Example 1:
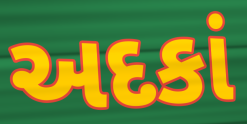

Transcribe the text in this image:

અદકાં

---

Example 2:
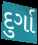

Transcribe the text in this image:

દુર્ગા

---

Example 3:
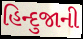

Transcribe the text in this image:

હિન્દુજાની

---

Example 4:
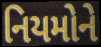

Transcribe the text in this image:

નિયમોને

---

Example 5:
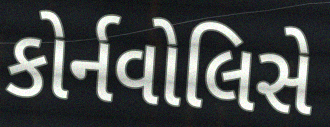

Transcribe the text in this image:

કોર્નવોલિસે